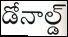
డోనాల్డ్